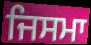
ਜਿਸਮਾ